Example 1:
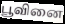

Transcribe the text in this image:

பூவினை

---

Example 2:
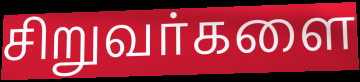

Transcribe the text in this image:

சிறுவர்களை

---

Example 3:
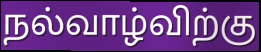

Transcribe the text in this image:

நல்வாழ்விற்கு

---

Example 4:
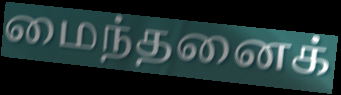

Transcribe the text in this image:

மைந்தனைக்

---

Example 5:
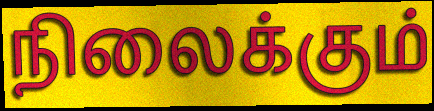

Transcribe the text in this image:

நிலைக்கும்